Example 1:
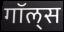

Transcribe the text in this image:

गॉल्स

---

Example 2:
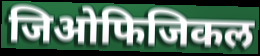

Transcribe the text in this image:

जिओफिजिकल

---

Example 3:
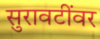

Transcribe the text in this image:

सुरावटींवर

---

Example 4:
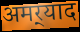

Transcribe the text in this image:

अमर्याद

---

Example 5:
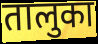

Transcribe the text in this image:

तालुका